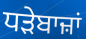
ਧੜੇਬਾਜ਼ਾਂ